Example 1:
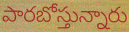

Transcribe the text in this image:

పారబోస్తున్నారు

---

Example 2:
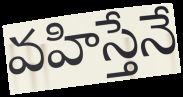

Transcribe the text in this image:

వహిస్తేనే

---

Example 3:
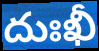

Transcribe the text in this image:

దుఃఖీ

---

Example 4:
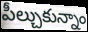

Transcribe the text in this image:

పీల్చుకున్నాం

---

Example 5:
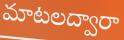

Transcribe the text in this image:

మాటలద్వారా